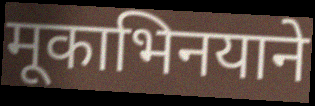
मूकाभिनयाने